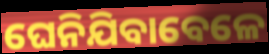
ଘେନିଯିବାବେଳେ